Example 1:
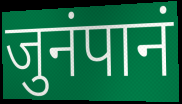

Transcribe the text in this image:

जुनंपानं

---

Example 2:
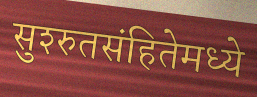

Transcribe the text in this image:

सुश्रुतसंहितेमध्ये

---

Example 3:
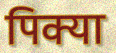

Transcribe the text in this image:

पिक्या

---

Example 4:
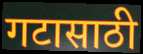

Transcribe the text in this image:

गटासाठी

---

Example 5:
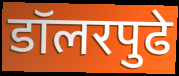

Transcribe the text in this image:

डॉलरपुढे